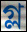
গ্ল